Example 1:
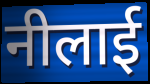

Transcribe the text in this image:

नीलाई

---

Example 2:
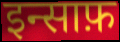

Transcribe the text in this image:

इन्साफ़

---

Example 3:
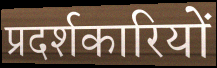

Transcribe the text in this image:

प्रदर्शकारियों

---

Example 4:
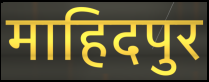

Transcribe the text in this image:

माहिदपुर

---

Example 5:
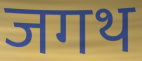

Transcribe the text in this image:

जगथ